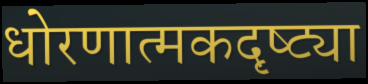
धोरणात्मकदृष्ट्या